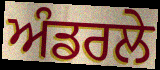
ਅੰਡਰਲੇ